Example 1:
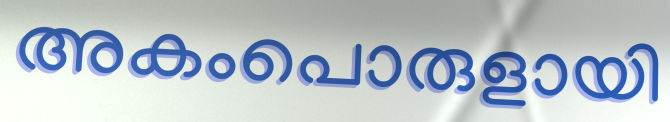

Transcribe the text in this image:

അകംപൊരുളായി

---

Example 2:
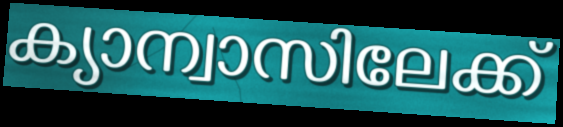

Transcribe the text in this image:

ക്യാന്വാസിലേക്ക്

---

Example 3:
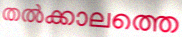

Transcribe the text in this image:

തൽക്കാലത്തെ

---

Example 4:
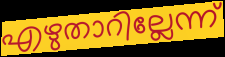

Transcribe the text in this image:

എഴുതാറില്ലേന്ന്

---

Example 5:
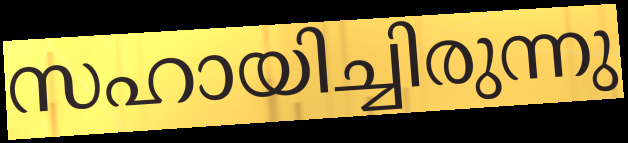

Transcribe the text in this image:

സഹായിച്ചിരുന്നു